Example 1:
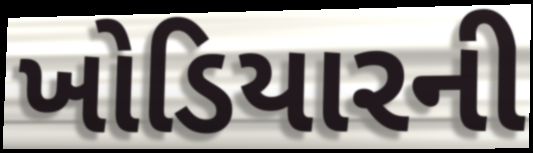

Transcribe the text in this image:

ખોડિયારની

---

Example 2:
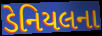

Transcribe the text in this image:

ડેનિયલના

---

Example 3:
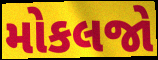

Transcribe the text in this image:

મોકલજો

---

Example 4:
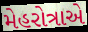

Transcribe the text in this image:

મેહરોત્રાએ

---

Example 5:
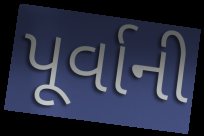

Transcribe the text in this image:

પૂર્વાની